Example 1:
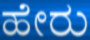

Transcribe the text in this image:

ಹೇರು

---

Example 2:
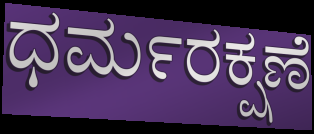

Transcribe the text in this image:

ಧರ್ಮರಕ್ಷಣೆ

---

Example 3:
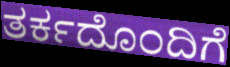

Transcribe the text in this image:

ತರ್ಕದೊಂದಿಗೆ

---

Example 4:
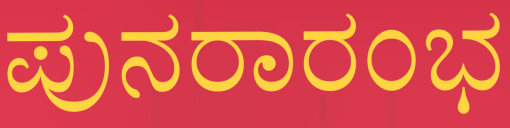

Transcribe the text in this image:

ಪುನರಾರಂಭ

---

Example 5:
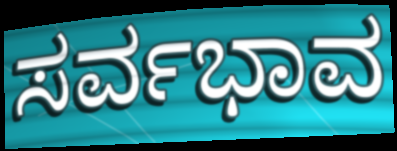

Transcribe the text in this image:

ಸರ್ವಭಾವ